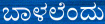
ಬಾಳಲೆಂದು